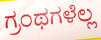
ಗ್ರಂಥಗಳೆಲ್ಲ